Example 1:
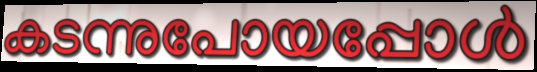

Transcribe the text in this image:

കടന്നുപോയപ്പോൾ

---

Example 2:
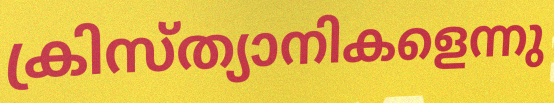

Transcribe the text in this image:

ക്രിസ്ത്യാനികളെന്നു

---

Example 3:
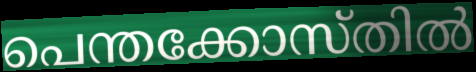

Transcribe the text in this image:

പെന്തക്കോസ്തിൽ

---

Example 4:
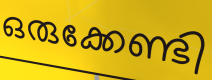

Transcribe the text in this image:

ഒരുക്കേണ്ടി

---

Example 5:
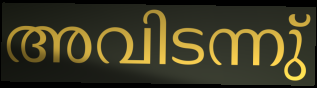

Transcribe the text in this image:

അവിടന്നു്